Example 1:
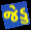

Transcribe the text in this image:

જેડુ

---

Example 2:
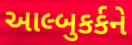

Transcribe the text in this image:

આલ્બુકર્કને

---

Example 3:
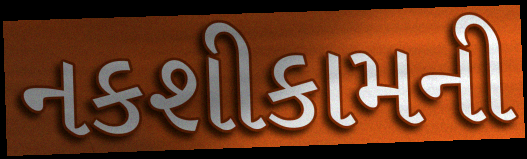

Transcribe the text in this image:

નકશીકામની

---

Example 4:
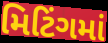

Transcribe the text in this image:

મિટિંગમાં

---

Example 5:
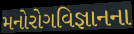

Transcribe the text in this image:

મનોરોગવિજ્ઞાનના